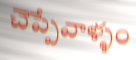
చెప్పేవాళ్ళం